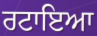
ਰਟਾਇਆ